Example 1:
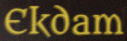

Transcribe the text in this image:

Ekdam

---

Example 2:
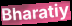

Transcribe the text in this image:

Bharatiy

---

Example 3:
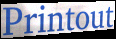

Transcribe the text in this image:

Printout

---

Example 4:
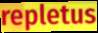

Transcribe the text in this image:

repletus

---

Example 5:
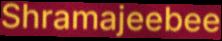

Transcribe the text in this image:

Shramajeebee